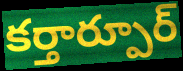
కర్తార్పూర్